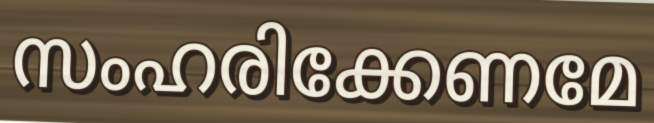
സംഹരിക്കേണമേ